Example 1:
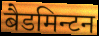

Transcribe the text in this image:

बैडमिन्टन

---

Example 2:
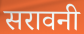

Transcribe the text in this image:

सरावनी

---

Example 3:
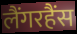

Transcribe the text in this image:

लैंगरहैंस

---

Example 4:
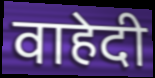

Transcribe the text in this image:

वाहेदी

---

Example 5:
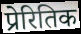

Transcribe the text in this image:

प्रेरितिक